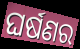
ଘର୍ଷଣର